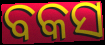
ବକସ